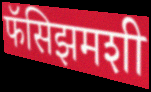
फॅसिझमशी